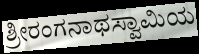
ಶ್ರೀರಂಗನಾಥಸ್ವಾಮಿಯ